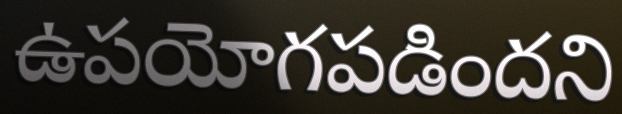
ఉపయోగపడిందని